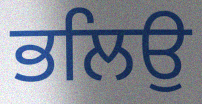
ਭਲਿਉ